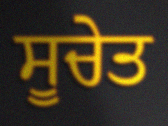
ਸੂਚੇਤ